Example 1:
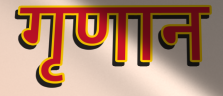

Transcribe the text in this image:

गृणान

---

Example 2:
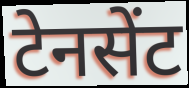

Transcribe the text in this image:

टेनसेंट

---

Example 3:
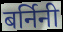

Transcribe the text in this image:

बर्निनी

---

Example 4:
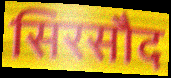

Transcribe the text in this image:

सिरसौद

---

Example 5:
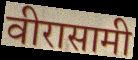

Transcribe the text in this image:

वीरासामी